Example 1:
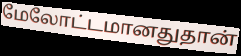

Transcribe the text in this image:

மேலோட்டமானதுதான்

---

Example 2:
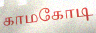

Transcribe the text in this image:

காமகோடி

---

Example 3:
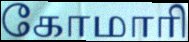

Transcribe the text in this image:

கோமாரி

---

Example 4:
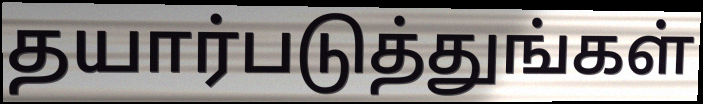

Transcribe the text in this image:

தயார்படுத்துங்கள்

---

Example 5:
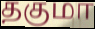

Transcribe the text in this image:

தகுமா